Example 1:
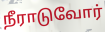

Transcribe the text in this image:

நீராடுவோர்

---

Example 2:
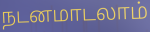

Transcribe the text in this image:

நடனமாடலாம்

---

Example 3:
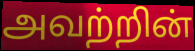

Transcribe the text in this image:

அவற்றின்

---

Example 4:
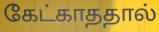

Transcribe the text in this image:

கேட்காததால்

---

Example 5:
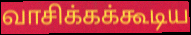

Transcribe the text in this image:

வாசிக்கக்கூடிய